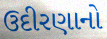
ઉદીરણાનો